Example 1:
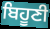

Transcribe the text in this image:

ਬਿਹੂਣੀ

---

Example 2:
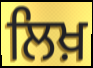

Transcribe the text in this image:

ਲਿਖ਼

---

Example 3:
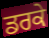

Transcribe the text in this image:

ਡਰਕੇ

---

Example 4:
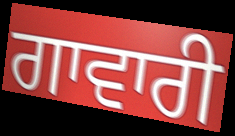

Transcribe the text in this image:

ਗਾਵਾਰੀ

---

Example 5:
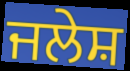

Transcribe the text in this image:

ਜਲੇਸ਼